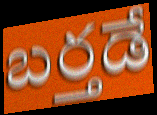
బర్తడే